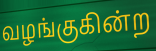
வழங்குகின்ற